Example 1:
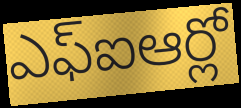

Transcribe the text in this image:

ఎఫ్ఐఆర్లో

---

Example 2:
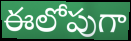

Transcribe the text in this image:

ఈలోపుగా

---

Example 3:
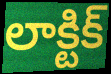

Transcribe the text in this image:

లాక్టిక్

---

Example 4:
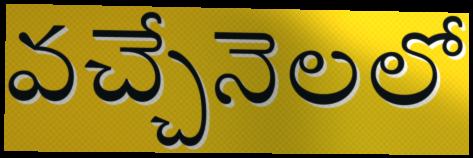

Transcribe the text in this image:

వచ్చేనెలలో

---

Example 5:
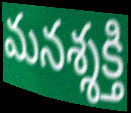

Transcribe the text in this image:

మనశ్శక్తి